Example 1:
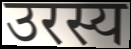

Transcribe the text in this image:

उरस्य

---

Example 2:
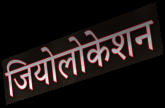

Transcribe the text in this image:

जियोलोकेशन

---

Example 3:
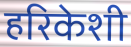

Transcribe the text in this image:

हरिकेशी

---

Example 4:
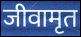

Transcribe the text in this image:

जीवामृत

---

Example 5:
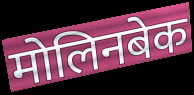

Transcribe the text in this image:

मोलिनबेक